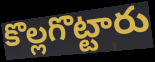
కొల్లగొట్టారు